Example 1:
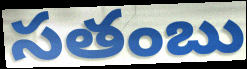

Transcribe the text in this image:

సతంబు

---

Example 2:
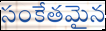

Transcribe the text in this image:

సంకేతమైన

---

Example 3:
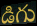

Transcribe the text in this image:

డిగు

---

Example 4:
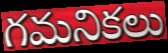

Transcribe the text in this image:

గమనికలు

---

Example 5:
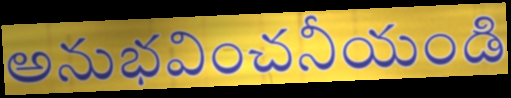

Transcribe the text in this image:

అనుభవించనీయండి